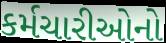
કર્મચારીઓનો